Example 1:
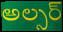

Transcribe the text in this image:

అల్సర్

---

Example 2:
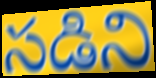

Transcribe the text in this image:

సడిని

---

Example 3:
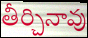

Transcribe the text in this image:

తీర్చినావు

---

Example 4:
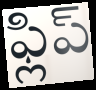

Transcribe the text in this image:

ఫ్లిప్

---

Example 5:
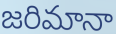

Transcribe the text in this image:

జరిమానా